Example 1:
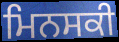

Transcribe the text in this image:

ਮਿਨਸਕੀ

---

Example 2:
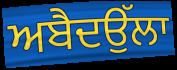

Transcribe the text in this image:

ਅਬੈਦਉੱਲਾ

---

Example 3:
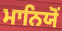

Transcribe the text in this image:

ਮਾਨਿਯੋਂ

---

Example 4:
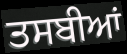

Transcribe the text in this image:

ਤਸਬੀਆਂ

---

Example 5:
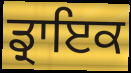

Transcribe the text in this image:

ਡ੍ਰਾਇਕ